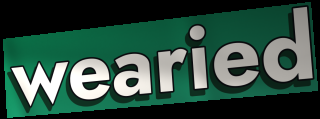
wearied